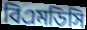
বিএমডিসি